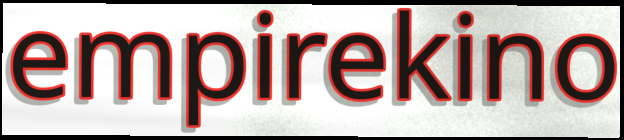
empirekino